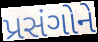
પ્રસંગોને